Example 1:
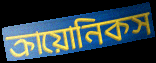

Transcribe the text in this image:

ক্রায়োনিকস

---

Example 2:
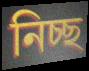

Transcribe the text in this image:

নিচ্ছ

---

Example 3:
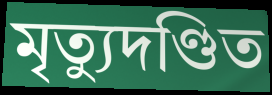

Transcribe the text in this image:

মৃত্যুদণ্ডিত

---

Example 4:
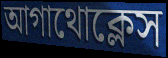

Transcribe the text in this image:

আগাথোক্লেস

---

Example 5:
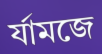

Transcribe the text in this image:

র্যামজে